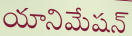
యానిమేషన్